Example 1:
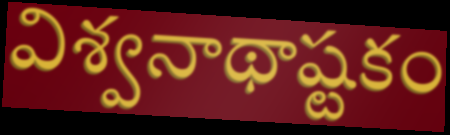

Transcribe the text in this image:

విశ్వనాథాష్టకం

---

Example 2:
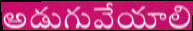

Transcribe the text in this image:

అడుగువేయాలి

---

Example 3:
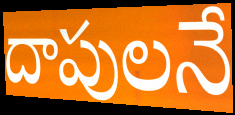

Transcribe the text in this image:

దాపులనే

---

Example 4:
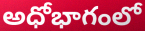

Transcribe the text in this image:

అధోభాగంలో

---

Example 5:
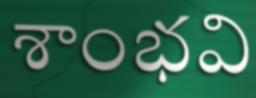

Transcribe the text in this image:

శాంభవి